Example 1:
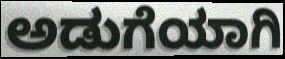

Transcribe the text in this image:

ಅಡುಗೆಯಾಗಿ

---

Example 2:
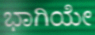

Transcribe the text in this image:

ಭಾಗಿಯೇ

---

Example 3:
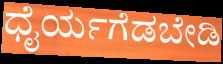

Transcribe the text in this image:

ಧೈರ್ಯಗೆಡಬೇಡಿ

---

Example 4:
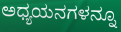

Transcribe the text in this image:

ಅಧ್ಯಯನಗಳನ್ನೂ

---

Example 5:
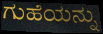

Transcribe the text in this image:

ಗುಹೆಯನ್ನು